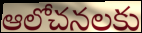
ఆలోచనలకు